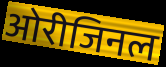
ओरीजिनल